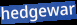
hedgewar